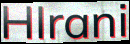
HIrani